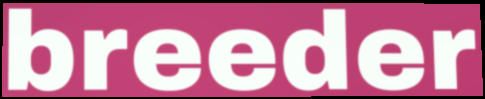
breeder